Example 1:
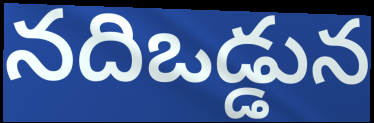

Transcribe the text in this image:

నదిఒడ్డున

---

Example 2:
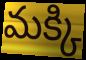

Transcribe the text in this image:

మక్కి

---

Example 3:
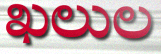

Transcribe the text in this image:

ఖలుల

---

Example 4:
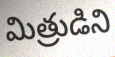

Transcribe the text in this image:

మిత్రుడిని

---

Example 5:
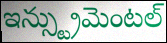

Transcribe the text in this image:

ఇన్స్ట్రుమెంటల్